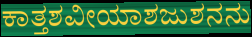
ಕಾತ್ತಶವೀಯಾಶಜುಶನನು